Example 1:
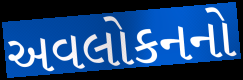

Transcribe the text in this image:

અવલોકનનો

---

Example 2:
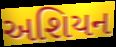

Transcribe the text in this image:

અશિયન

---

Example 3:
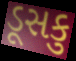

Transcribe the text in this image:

ડૂસકુ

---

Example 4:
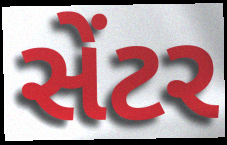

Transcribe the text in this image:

સેંટર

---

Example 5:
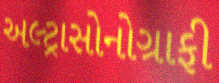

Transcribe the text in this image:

અલ્ટ્રાસોનોગ્રાફી